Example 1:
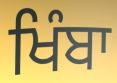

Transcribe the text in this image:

ਖਿੰਬਾ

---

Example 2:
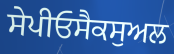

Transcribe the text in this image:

ਸੇਪੀਓਸੈਕਸੁਅਲ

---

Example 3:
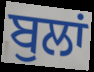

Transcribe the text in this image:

ਬੁਲਾਂ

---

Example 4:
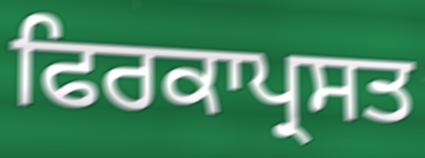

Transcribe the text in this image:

ਫਿਰਕਾਪ੍ਰਸਤ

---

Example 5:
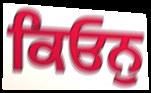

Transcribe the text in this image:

ਕਿਓਨੁ